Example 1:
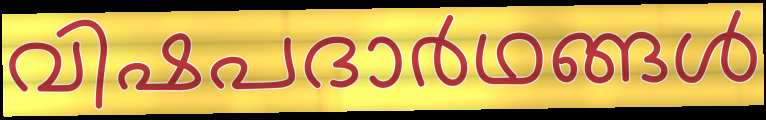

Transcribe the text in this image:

വിഷപദാർഥങ്ങൾ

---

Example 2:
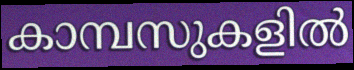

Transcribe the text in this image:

കാമ്പസുകളിൽ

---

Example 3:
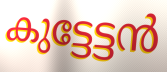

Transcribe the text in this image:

കുട്ടേട്ടൻ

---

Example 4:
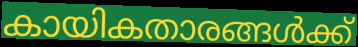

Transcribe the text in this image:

കായികതാരങ്ങൾക്ക്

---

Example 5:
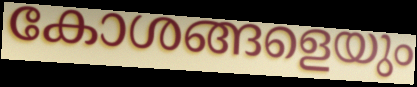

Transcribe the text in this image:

കോശങ്ങളെയും